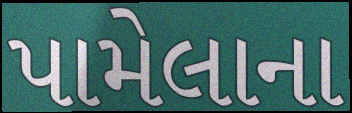
પામેલાના